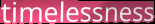
timelessness